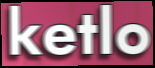
ketlo